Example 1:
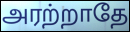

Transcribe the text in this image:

அரற்றாதே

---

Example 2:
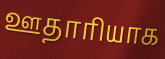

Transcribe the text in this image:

ஊதாரியாக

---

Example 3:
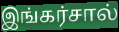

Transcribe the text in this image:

இங்கர்சால்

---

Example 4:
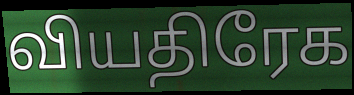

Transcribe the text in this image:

வியதிரேக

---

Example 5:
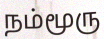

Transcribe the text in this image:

நம்மூரு